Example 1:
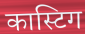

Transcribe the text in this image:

कास्टिग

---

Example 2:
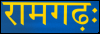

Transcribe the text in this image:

रामगढ़ः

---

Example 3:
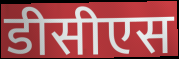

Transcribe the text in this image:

डीसीएस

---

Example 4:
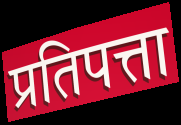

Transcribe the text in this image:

प्रतिपत्ता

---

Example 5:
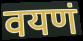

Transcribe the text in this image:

वयणं